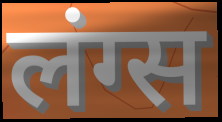
लंग्स